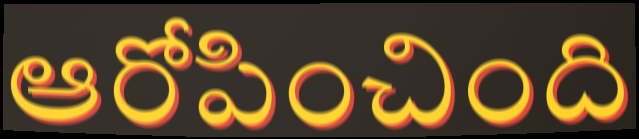
ఆరోపించింది